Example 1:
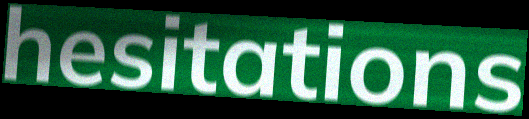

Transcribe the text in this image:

hesitations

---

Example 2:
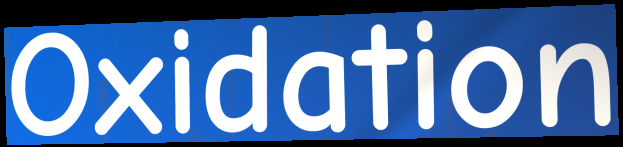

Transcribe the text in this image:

Oxidation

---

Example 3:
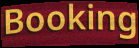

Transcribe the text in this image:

Booking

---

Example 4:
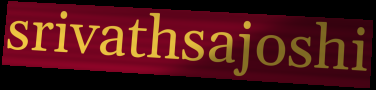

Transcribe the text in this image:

srivathsajoshi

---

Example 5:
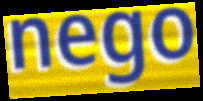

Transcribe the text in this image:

nego